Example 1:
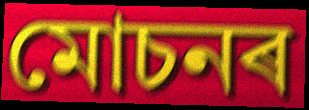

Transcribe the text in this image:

মোচনৰ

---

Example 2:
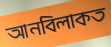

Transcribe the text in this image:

আনবিলাকত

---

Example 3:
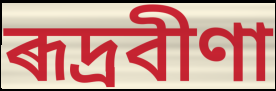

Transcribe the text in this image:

ৰূদ্ৰবীণা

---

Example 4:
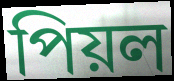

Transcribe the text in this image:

পিয়ল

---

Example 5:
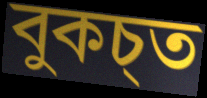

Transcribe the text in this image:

বুকচ্ত